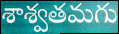
శాశ్వతమగు